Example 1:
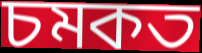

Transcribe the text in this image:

চমকত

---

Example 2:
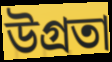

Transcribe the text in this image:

উগ্রতা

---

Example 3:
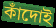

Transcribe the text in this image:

কাঁদোই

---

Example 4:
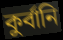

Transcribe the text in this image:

কুর্বানি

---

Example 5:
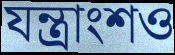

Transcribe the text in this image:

যন্ত্রাংশও